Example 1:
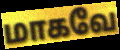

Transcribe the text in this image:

மாகவே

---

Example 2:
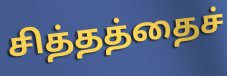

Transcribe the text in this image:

சித்தத்தைச்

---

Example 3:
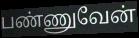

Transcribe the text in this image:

பண்ணுவேன்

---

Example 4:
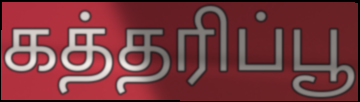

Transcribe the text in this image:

கத்தரிப்பூ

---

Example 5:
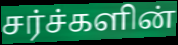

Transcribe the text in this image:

சர்ச்களின்